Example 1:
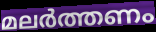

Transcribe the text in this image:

മലർത്തണം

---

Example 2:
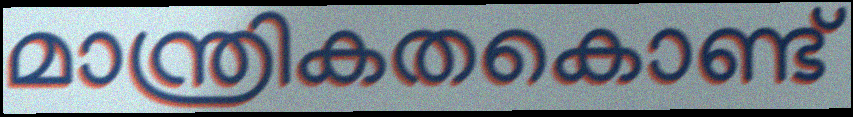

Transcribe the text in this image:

മാന്ത്രികതകൊണ്ട്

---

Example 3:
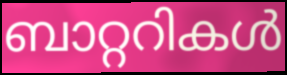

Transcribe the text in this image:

ബാറ്ററികൾ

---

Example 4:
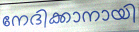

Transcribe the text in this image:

നേദിക്കാനായി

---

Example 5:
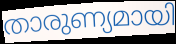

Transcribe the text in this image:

താരുണ്യമായി